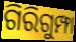
ଗିରିଗୁମ୍ଫା